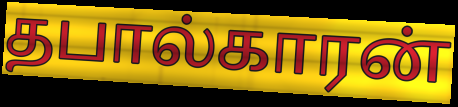
தபால்காரன்